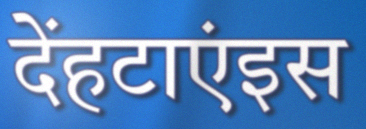
देंहटाएंइस